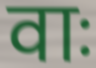
वाः